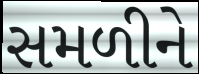
સમળીને